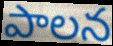
పాలన